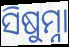
ସିଷୁମ୍ନା